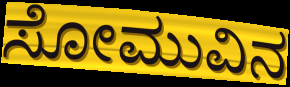
ಸೋಮುವಿನ